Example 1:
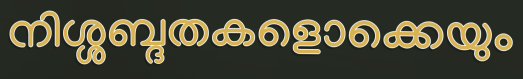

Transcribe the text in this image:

നിശ്ശബ്ദതകളൊക്കെയും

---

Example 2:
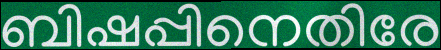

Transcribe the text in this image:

ബിഷപ്പിനെതിരേ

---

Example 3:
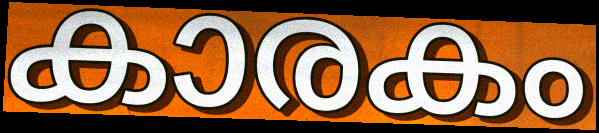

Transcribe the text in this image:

കാരകം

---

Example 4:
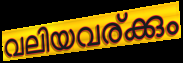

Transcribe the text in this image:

വലിയവര്ക്കും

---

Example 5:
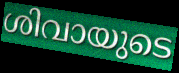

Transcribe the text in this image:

ശിവായുടെ